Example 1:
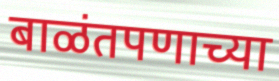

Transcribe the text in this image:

बाळंतपणाच्या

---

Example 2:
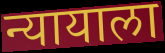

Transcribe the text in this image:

न्यायाला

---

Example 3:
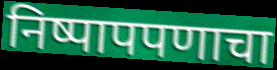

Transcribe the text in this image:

निष्पापपणाचा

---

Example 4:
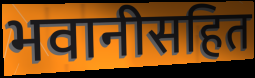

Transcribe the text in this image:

भवानीसहित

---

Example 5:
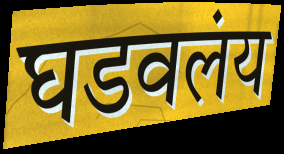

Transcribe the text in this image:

घडवलंय